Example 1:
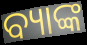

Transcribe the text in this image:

ବ୍ୟାଙ୍କ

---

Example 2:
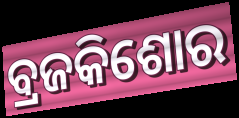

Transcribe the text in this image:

ବ୍ରଜକିଶୋର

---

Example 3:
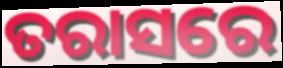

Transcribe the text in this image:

ତରାସରେ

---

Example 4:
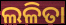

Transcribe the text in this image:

ଲଳିତା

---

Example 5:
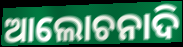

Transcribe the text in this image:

ଆଲୋଚନାଦି